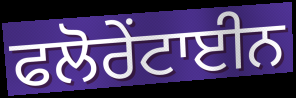
ਫਲੋਰੇਂਟਾਈਨ